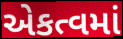
એકત્વમાં